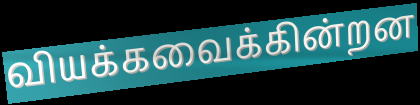
வியக்கவைக்கின்றன